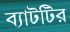
ব্যাটটির